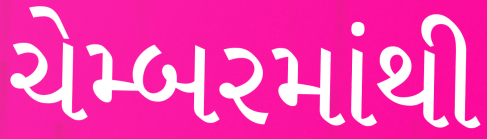
ચેમ્બરમાંથી